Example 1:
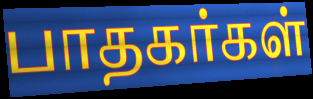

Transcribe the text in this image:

பாதகர்கள்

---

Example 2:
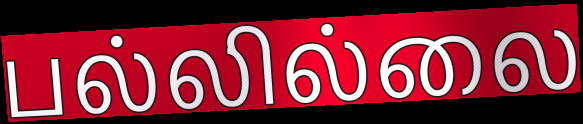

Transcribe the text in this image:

பல்லில்லை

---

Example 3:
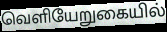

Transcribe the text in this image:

வெளியேறுகையில்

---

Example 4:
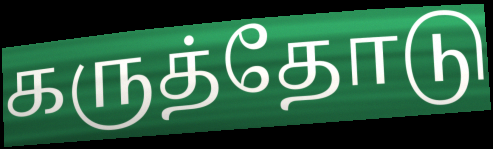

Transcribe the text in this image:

கருத்தோடு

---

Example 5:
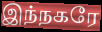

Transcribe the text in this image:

இந்நகரே